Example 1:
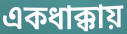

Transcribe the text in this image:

একধাক্কায়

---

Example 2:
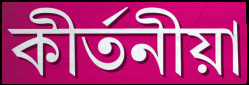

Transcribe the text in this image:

কীর্তনীয়া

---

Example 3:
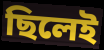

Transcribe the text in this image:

ছিলেই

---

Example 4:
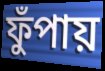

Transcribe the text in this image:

ফুঁপায়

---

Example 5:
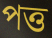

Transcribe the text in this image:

পত্ত